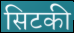
सिटकी